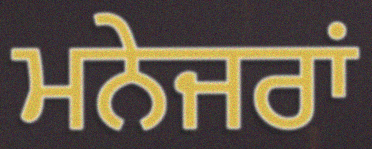
ਮਨੇਜਰਾਂ